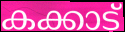
കക്കാട്